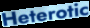
Heterotic